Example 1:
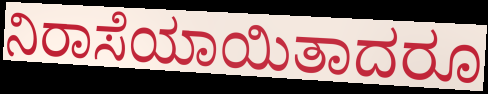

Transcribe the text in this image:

ನಿರಾಸೆಯಾಯಿತಾದರೂ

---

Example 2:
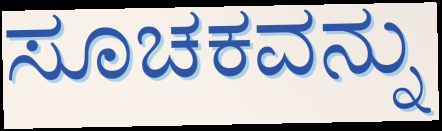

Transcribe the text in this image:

ಸೂಚಕವನ್ನು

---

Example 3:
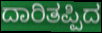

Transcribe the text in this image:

ದಾರಿತಪ್ಪಿದ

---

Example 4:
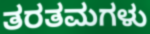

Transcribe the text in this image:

ತರತಮಗಳು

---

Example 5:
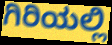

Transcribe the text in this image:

ಗಿರಿಯಲ್ಲಿ